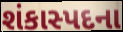
શંકાસ્પદના